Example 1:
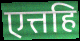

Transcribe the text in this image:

एत्तहि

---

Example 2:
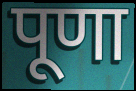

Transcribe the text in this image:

पूणा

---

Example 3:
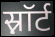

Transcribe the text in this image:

स्नॉर्ट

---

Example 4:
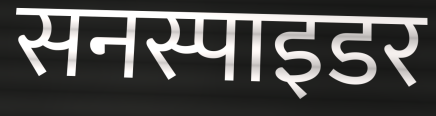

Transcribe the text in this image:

सनस्पाइडर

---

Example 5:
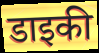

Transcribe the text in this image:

डाइकी